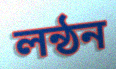
লন্ঠন